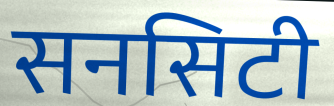
सनसिटी